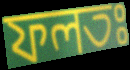
ফলতঃ